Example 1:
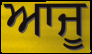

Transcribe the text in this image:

ਆਜੂ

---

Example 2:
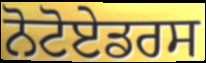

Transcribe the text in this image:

ਨੋਟੋਏਡਰਸ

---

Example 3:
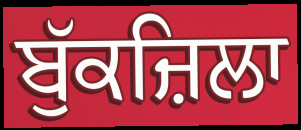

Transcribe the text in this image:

ਬੁੱਕਜ਼ਿਲਾ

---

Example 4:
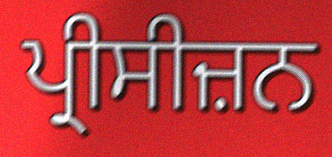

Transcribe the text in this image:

ਪ੍ਰੀਸੀਜ਼ਨ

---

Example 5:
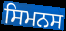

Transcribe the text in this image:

ਸਿਮਨਸ